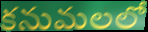
కనుమలలో